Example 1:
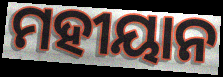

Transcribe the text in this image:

ମହୀୟାନ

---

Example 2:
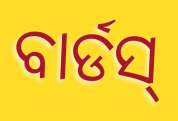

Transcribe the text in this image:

ବାର୍ଡସ୍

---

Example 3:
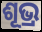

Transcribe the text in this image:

ଶୂଭ୍ର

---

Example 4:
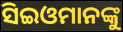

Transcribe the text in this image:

ସିଇଓମାନଙ୍କୁ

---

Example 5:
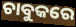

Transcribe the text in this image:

ଚାବୁକରେ